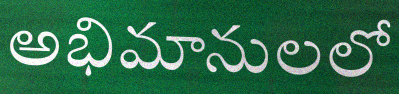
అభిమానులలో